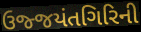
ઉજ્જયંતગિરિની